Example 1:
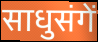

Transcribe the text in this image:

साधुसंगें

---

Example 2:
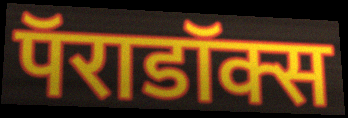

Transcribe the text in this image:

पॅराडॉक्स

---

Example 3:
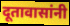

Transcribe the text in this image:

दूतावासांनी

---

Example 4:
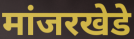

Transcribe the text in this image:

मांजरखेडे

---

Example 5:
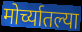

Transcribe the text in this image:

मोर्च्यातल्या